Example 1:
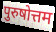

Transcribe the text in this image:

पुरुषोत्तम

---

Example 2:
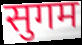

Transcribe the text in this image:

सुगम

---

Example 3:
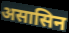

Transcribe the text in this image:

असासिन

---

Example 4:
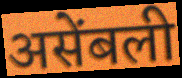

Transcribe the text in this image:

असेंबली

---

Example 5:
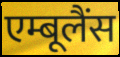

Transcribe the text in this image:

एम्बूलैंस